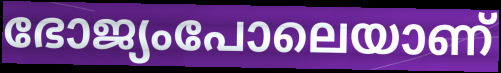
ഭോജ്യംപോലെയാണ്